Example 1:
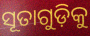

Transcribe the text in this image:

ସୂତାଗୁଡ଼ିକୁ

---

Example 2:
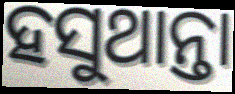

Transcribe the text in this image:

ହସୁଥାନ୍ତା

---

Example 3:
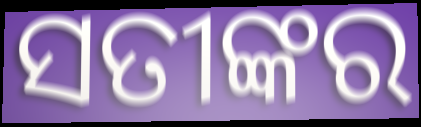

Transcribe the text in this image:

ସତୀଙ୍କର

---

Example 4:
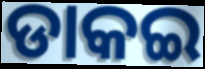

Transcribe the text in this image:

ଡାକଇ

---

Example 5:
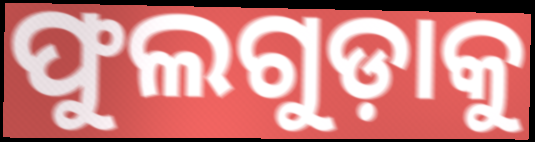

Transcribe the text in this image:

ଫୁଲଗୁଡ଼ାକୁ